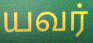
யவர்